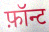
फ़ॉन्ट